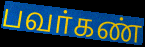
பவர்கண்